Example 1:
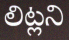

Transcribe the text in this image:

లిట్లని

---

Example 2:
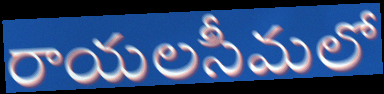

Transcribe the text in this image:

రాయలసీమలో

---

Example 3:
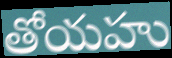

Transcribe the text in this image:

తోయహు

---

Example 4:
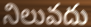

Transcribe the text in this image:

నిలువదు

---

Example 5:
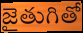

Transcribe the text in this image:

జైతుగితో